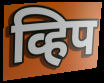
व्हिप